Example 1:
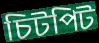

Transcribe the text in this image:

চিটপিট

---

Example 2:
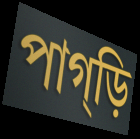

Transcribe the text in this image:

পাগ্ড়ি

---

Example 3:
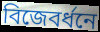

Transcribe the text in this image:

বিজেবর্ধনে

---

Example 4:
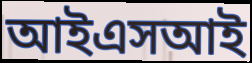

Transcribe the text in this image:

আইএসআই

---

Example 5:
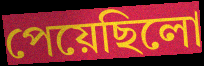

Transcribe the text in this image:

পেয়েছিলো